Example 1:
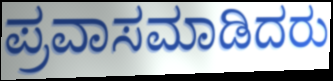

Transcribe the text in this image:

ಪ್ರವಾಸಮಾಡಿದರು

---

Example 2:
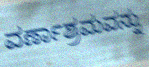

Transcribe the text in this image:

ವರ್ಣಾಶ್ರಮವನ್ನು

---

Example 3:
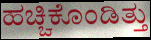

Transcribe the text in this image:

ಹಚ್ಚಿಕೊಂಡಿತ್ತು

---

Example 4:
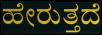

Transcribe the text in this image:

ಹೇರುತ್ತದೆ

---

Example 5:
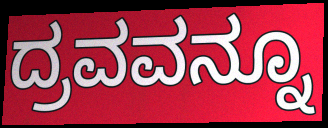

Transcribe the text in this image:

ದ್ರವವನ್ನೂ